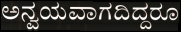
ಅನ್ವಯವಾಗದಿದ್ದರೂ